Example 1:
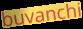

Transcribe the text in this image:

buvanchi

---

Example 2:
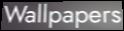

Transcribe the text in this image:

Wallpapers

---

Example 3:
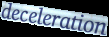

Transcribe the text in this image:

deceleration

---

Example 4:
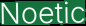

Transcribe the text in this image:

Noetic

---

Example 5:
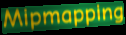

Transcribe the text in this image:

Mipmapping